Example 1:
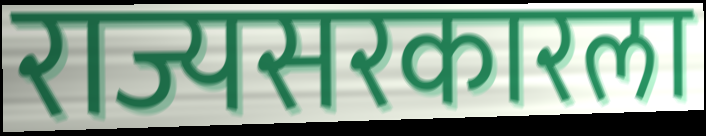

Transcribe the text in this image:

राज्यसरकारला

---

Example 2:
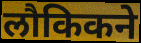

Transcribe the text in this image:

लौकिकने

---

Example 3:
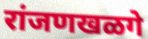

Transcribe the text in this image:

रांजणखळगे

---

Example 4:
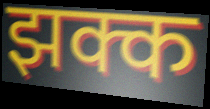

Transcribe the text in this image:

झक्क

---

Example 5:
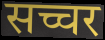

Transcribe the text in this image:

सच्चर